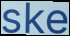
ske